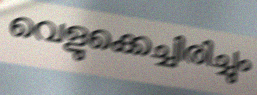
വെളുക്കെച്ചിരിച്ചും